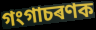
গংগাচৰণক